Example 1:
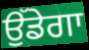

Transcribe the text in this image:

ਉੱਡੇਗਾ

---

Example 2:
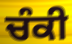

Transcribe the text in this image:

ਚੰਕੀ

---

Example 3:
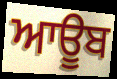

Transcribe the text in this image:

ਆਊਬ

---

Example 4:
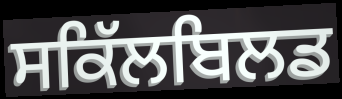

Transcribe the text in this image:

ਸਕਿੱਲਬਿਲਡ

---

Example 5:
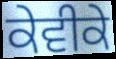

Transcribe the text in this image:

ਕੇਵੀਕੇ